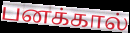
பனக்கால்